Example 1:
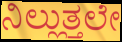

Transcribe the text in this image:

ನಿಲ್ಲುತ್ತಲೇ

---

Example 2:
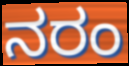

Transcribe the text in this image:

ನರಂ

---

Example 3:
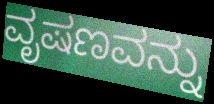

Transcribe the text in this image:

ವೃಷಣವನ್ನು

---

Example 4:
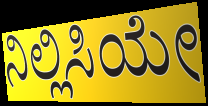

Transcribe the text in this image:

ನಿಲ್ಲಿಸಿಯೇ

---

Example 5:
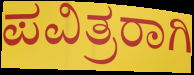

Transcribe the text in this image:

ಪವಿತ್ರರಾಗಿ